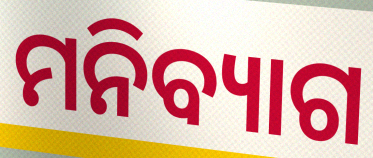
ମନିବ୍ୟାଗ